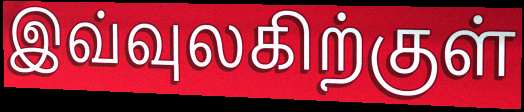
இவ்வுலகிற்குள்